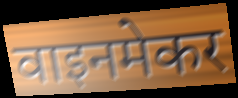
वाइनमेकर